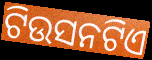
ଟିଉସନଟିଏ